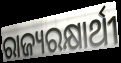
ରାଜ୍ୟରକ୍ଷାର୍ଥୀ